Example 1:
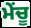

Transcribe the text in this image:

ਮੇਂਚੂ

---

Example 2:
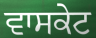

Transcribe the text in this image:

ਵਾਸਕੇਟ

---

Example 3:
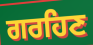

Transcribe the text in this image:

ਗਰਹਿਣ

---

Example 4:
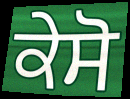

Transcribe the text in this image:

ਕੇਸੋ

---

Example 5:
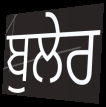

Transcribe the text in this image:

ਬੁਲੇਰ